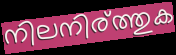
നിലനിര്ത്തുക